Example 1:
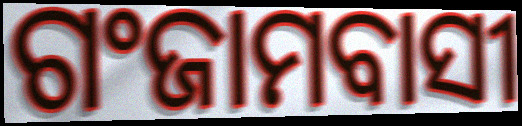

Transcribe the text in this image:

ଗଂଜାମବାସୀ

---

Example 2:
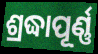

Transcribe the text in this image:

ଶ୍ରଦ୍ଧାପୂର୍ଣ୍ଣ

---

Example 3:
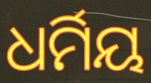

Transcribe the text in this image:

ଧର୍ମିୟ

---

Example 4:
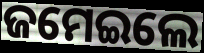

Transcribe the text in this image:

ଜମେଇଲେ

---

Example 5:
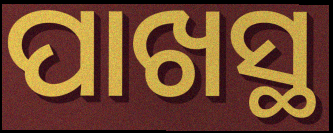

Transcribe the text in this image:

ପାଖସ୍ଥ